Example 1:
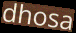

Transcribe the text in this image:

dhosa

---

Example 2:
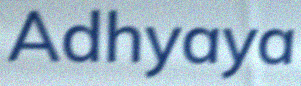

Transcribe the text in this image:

Adhyaya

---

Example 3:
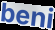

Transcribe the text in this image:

beni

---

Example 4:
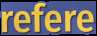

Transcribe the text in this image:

refere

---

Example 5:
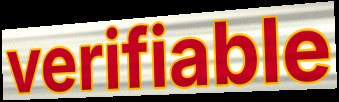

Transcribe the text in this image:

verifiable